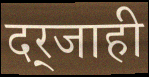
दर्जाही